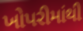
ખોપરીમાંથી